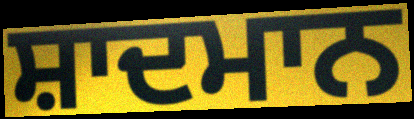
ਸ਼ਾਦਮਾਨ